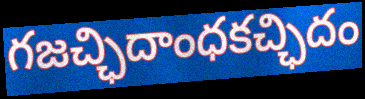
గజచ్ఛిదాంధకచ్ఛిదం